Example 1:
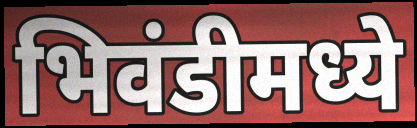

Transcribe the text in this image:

भिवंडीमध्ये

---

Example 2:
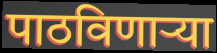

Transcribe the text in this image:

पाठविणाऱ्या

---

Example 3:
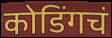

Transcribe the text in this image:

कोडिंगचं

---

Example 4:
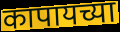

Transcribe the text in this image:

कापायच्या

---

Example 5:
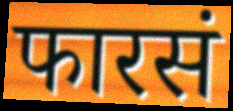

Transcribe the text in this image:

फारसं